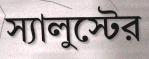
স্যালুস্টের